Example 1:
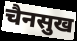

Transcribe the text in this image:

चैनसुख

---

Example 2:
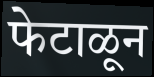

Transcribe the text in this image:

फेटाळून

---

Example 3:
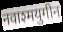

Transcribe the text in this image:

नवाश्मयुगीन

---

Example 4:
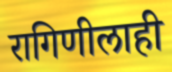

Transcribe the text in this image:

रागिणीलाही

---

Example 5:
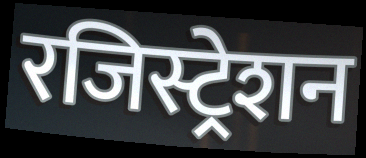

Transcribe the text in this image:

रजिस्ट्रेशन